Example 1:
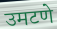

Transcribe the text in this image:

उमटणे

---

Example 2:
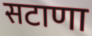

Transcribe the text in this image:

सटाणा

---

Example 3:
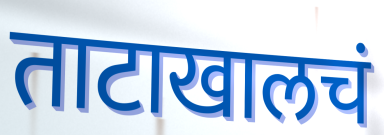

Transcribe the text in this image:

ताटाखालचं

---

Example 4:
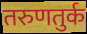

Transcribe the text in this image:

तरुणतुर्क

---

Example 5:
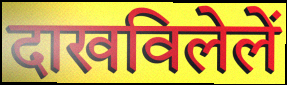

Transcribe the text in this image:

दाखविलेलें